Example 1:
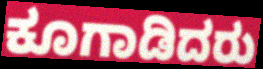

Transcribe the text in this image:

ಕೂಗಾಡಿದರು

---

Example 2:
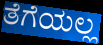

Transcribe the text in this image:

ತೆಗೆಯಲ್ಲ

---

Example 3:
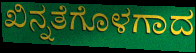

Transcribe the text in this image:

ಖಿನ್ನತೆಗೊಳಗಾದ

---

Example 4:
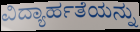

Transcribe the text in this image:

ವಿದ್ಯಾರ್ಹತೆಯನ್ನು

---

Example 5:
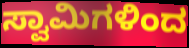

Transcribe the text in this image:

ಸ್ವಾಮಿಗಳಿಂದ